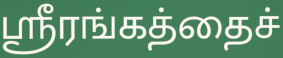
ஸ்ரீரங்கத்தைச்